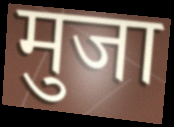
मुजा